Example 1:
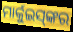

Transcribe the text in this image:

ମାର୍କୁଇସ୍‍ଙ୍କର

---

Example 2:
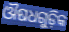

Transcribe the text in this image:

ଔଷଧଗୁଡ଼ିକ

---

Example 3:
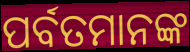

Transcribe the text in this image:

ପର୍ବତମାନଙ୍କ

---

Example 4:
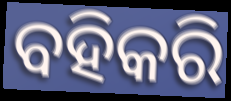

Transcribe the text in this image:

ବହିକରି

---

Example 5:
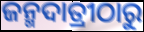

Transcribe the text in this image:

ଜନ୍ମଦାତ୍ରୀଠାରୁ